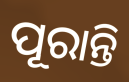
ପୂରାନ୍ତି